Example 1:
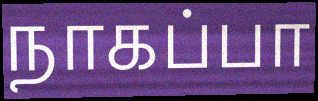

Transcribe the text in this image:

நாகப்பா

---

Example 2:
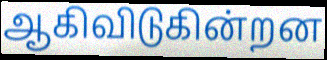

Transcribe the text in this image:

ஆகிவிடுகின்றன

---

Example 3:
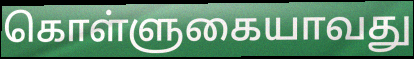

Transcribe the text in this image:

கொள்ளுகையாவது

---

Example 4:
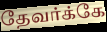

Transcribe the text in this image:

தேவர்க்கே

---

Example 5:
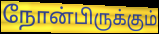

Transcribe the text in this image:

நோன்பிருக்கும்